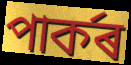
পাৰ্কৰ